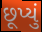
છૂપ્યું